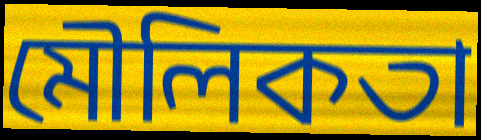
মৌলিকতা